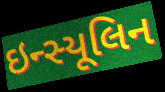
ઇન્સ્યૂલિન